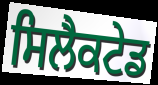
ਸਿਲੈਕਟੇਡ